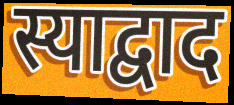
स्याद्वाद